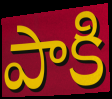
పాకి